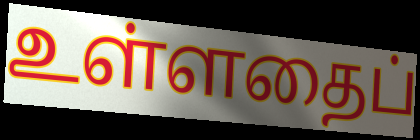
உள்ளதைப்